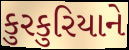
કુરકુરિયાને